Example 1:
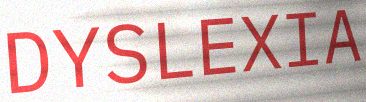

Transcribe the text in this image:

DYSLEXIA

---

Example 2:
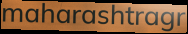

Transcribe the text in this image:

maharashtragr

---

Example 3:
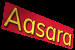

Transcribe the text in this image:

Aasara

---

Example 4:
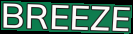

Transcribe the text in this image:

BREEZE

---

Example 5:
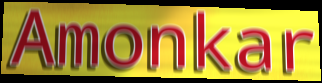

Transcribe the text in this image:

Amonkar